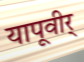
यापूवीर्